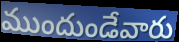
ముందుండేవారు